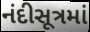
નંદીસૂત્રમાં